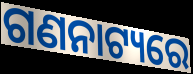
ଗଣନାଟ୍ୟରେ